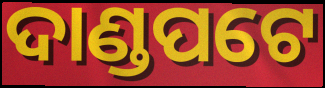
ଦାଣ୍ଡପଟେ